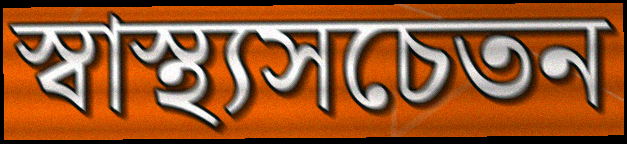
স্বাস্থ্যসচেতন